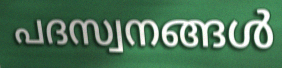
പദസ്വനങ്ങൾ